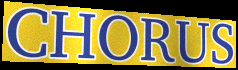
CHORUS